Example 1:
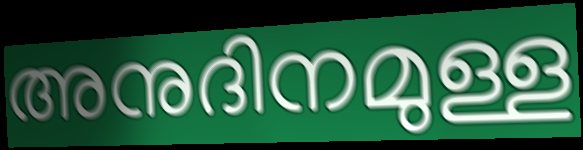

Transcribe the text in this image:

അനുദിനമുള്ള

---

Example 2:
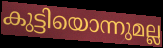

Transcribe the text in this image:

കുട്ടിയൊന്നുമല്ല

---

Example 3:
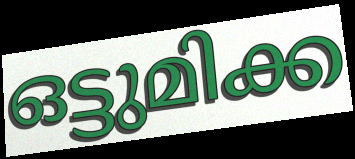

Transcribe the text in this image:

ഒട്ടുമിക്ക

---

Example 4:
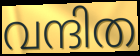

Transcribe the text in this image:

വന്ദിത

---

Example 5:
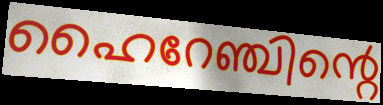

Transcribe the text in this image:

ഹൈറേഞ്ചിന്റെ